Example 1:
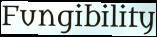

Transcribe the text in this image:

Fungibility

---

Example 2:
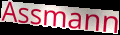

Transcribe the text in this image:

Assmann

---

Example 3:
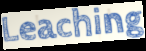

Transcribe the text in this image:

Leaching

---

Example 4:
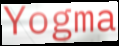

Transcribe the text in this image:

Yogma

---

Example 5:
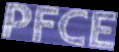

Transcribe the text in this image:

PFCE